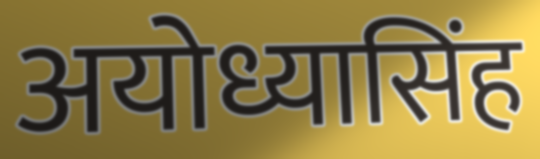
अयोध्यासिंह